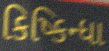
કિષ્કિન્ધા